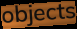
objects